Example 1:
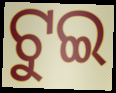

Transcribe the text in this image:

ଟୁଇ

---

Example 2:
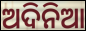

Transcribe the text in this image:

ଅଦିନିଆ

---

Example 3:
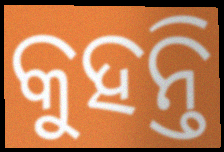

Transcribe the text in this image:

କୁହନ୍ତି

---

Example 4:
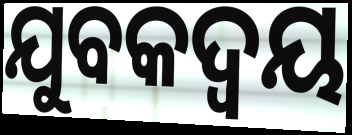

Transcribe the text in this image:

ଯୁବକଦ୍ୱୟ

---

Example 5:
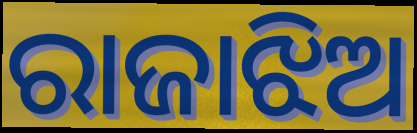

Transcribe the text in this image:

ରାଜାଝିଅ